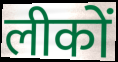
लीकों